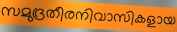
സമുദ്രതീരനിവാസികളായ